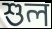
শুল